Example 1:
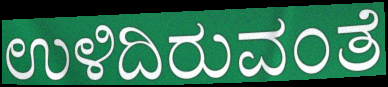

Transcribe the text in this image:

ಉಳಿದಿರುವಂತೆ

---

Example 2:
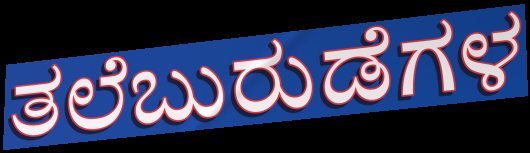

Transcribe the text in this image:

ತಲೆಬುರುಡೆಗಳ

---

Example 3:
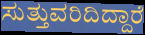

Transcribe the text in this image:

ಸುತ್ತುವರಿದಿದ್ದಾರೆ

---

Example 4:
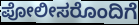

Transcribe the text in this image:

ಪೋಲೀಸರೊಂದಿಗೆ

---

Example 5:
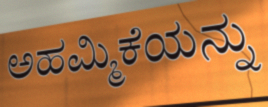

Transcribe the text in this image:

ಅಹಮ್ಮಿಕೆಯನ್ನು